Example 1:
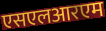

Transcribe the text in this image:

एसएलआरएम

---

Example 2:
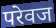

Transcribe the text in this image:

परेवज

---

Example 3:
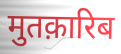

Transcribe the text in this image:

मुतक़ारिब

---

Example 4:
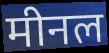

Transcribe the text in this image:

मीनल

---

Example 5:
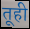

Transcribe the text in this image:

तूही